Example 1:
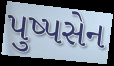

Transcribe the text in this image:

પુષ્પસેન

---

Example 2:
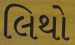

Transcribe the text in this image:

લિથો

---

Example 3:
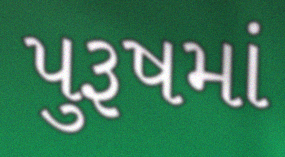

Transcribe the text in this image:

પુરૂષમાં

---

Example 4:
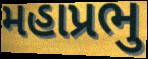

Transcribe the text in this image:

મહાપ્રભુ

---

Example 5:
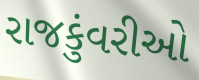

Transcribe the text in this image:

રાજકુંવરીઓ